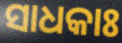
ସାଧକାଃ